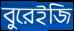
বুরেইজি